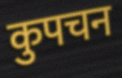
कुपचन